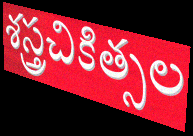
శస్త్రచికిత్సల